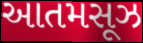
આતમસૂઝ